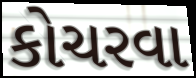
કોચરવા